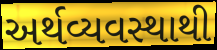
અર્થવ્યવસ્થાથી